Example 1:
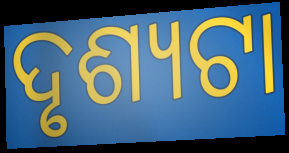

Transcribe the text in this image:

ଦୃଶ୍ୟଟା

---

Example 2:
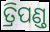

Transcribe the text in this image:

ତ୍ରିପଣ୍ଡ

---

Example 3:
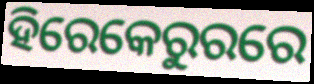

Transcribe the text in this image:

ହିରେକେରୁରରେ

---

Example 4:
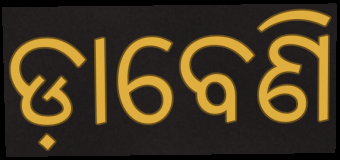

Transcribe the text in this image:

ଡ଼ାବେଣି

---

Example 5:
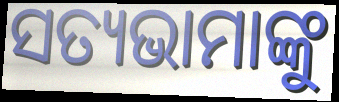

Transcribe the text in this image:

ସତ୍ୟଭାମାଙ୍କୁ